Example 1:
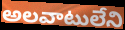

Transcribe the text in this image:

అలవాటులేని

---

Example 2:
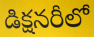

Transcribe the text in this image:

డిక్షనరీలో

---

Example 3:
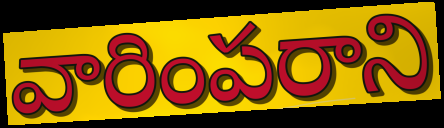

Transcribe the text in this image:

వారింపరాని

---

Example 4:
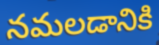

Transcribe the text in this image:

నమలడానికి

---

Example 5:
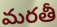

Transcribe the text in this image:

మరతీ